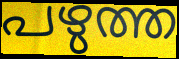
പഴുത്ത